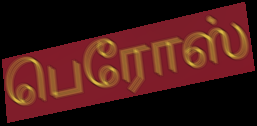
பெரோஸ்